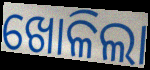
ଖୋଳିଲା